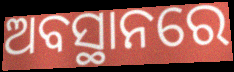
ଅବସ୍ଥାନରେ